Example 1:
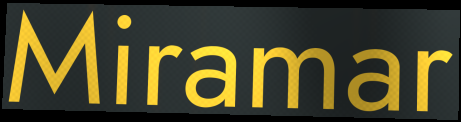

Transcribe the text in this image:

Miramar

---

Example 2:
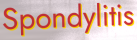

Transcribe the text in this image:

Spondylitis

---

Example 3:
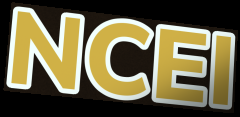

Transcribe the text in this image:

NCEI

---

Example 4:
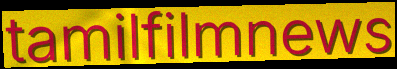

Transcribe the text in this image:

tamilfilmnews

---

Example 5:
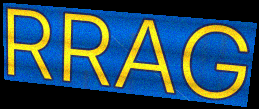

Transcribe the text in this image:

RRAG